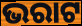
ଭରାଟ